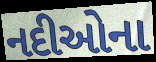
નદીઓના